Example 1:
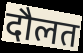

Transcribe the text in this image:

दौलत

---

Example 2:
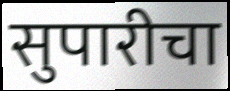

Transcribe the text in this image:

सुपारीचा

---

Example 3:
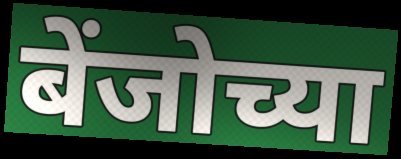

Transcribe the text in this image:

बेंजोच्या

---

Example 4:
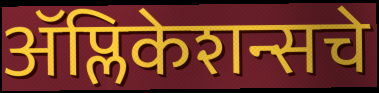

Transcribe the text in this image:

ॲप्लिकेशन्सचे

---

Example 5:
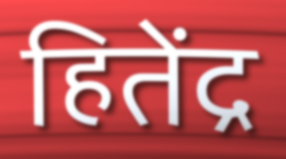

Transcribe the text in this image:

हितेंद्र